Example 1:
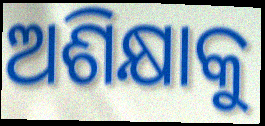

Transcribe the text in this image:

ଅଶିକ୍ଷାକୁ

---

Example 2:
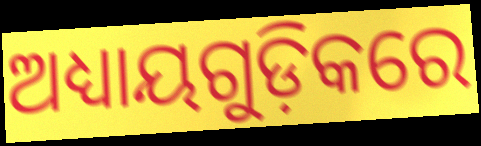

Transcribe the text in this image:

ଅଧ୍ୟାୟଗୁଡ଼ିକରେ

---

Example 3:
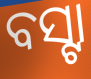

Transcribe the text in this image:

ବସ୍ଟା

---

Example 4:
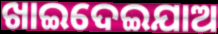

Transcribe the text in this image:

ଖାଇଦେଇଯାଅ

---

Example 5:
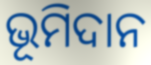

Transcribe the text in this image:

ଭୂମିଦାନ